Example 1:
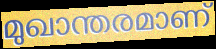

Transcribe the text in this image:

മുഖാന്തരമാണ്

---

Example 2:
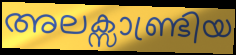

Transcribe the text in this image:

അലക്സാണ്ട്രിയ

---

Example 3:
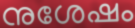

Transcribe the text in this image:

നുശേഷം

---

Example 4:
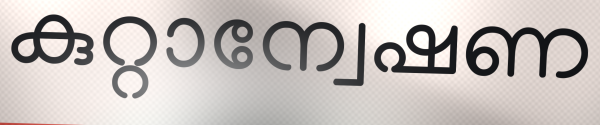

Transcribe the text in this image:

കുറ്റാന്വേഷണ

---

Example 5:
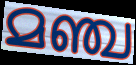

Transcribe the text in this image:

മഞ്ച